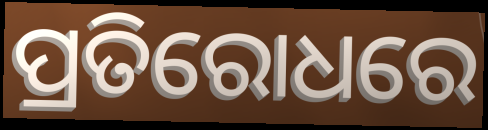
ପ୍ରତିରୋଧରେ